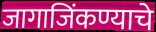
जागाजिंकण्याचे